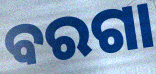
ବରଗା